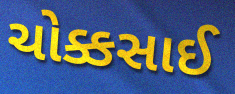
ચોક્કસાઈ